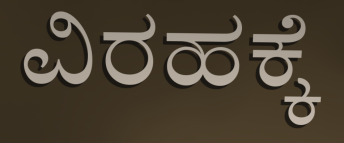
ವಿರಹಕ್ಕೆ